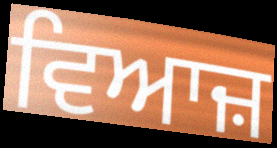
ਵਿਆਜ਼